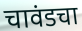
चावंडचा